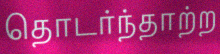
தொடர்ந்தாற்ற